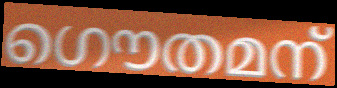
ഗൌതമന്